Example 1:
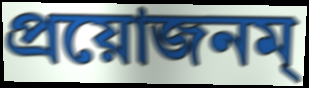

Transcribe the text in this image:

প্রয়োজনম্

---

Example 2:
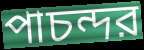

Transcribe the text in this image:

পাচন্দর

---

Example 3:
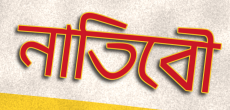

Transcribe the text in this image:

নাতিবৌ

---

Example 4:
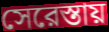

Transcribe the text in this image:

সেরেস্তায়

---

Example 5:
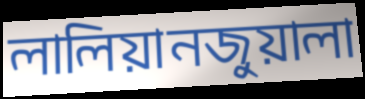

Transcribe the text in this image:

লালিয়ানজুয়ালা